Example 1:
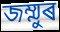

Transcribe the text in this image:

জম্মুৰ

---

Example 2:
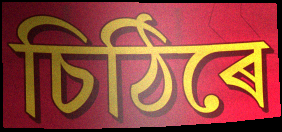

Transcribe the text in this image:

চিঠিৰে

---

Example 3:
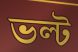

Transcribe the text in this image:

ভল্ট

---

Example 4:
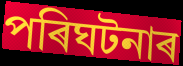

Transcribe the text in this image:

পৰিঘটনাৰ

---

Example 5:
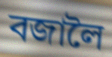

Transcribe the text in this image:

বজালৈ